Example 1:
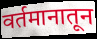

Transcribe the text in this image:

वर्तमानातून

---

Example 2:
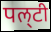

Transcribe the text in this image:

पल्टी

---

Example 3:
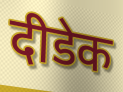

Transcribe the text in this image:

दीडेक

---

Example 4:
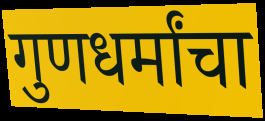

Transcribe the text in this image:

गुणधर्मांचा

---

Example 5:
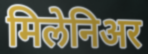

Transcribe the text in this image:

मिलेनिअर